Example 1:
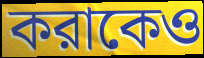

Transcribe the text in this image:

করাকেও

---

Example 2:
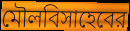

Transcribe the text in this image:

মৌলবিসাহেবের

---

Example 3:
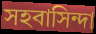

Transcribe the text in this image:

সহবাসিন্দা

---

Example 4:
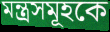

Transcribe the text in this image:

মন্ত্রসমূহকে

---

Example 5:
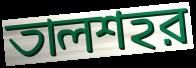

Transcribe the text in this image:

তালশহর